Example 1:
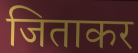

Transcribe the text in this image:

जिताकर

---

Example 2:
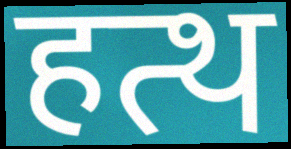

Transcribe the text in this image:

हत्थ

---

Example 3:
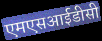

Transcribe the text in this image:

एमएसआईडीसी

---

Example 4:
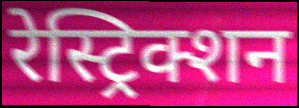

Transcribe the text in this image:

रेस्ट्रिक्शन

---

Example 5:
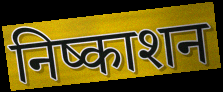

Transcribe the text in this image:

निष्काशन